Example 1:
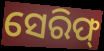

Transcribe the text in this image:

ସେରିଫ୍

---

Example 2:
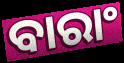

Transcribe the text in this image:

ବାରାଂ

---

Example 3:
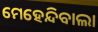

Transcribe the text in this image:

ମେହେନ୍ଦିବାଲା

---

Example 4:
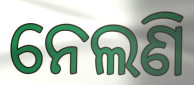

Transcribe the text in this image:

ନେଲଣି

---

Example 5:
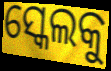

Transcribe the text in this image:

ସ୍କେଲକୁ